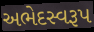
અભેદસ્વરૂપ